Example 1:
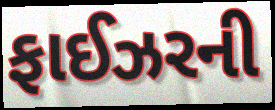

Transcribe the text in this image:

ફાઈઝરની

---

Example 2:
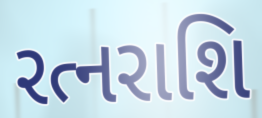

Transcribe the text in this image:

રત્નરાશિ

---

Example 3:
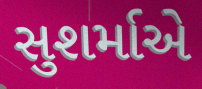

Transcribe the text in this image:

સુશર્માએ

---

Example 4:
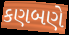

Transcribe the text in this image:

કણબણે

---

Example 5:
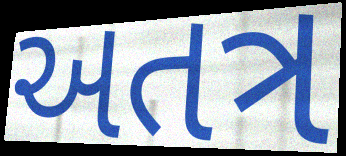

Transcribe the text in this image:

અતત્ર